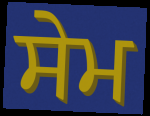
ਸੇਮ